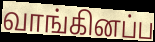
வாங்கினப்ப